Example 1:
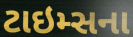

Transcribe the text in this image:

ટાઇમ્સના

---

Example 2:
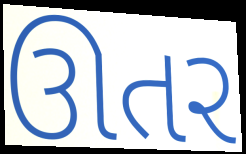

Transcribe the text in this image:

ઊતર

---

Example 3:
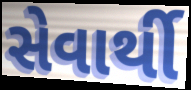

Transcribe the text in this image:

સેવાર્થી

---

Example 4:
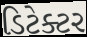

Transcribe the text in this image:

ડિટેક્ટર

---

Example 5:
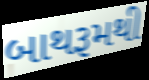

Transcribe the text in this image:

બાથરૂમથી